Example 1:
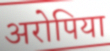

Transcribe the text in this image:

अरोपिया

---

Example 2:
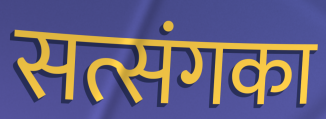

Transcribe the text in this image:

सत्संगका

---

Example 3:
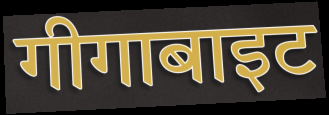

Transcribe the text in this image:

गीगाबाइट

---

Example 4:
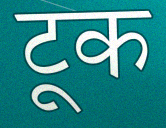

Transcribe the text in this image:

टूक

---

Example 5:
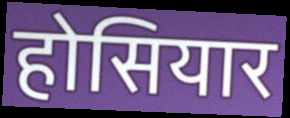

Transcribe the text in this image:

होसियार